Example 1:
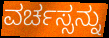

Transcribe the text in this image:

ವರ್ಚಸ್ಸನ್ನು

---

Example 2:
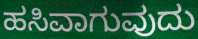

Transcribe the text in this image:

ಹಸಿವಾಗುವುದು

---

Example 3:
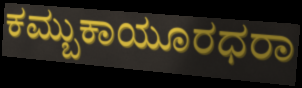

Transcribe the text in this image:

ಕಮ್ಬುಕಾಯೂರಧರಾ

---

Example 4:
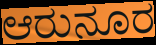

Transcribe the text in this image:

ಆರುನೂರ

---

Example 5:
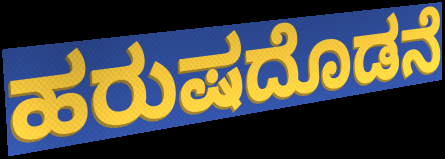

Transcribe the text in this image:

ಹರುಷದೊಡನೆ